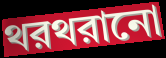
থরথরানো